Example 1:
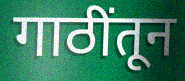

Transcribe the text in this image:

गाठींतून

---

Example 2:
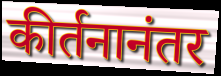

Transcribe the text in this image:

कीर्तनानंतर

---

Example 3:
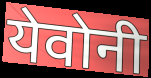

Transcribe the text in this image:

येवोनी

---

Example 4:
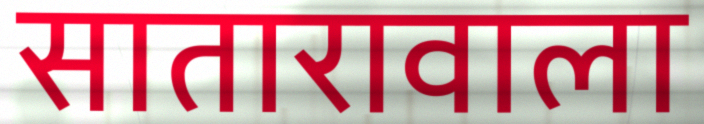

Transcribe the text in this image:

सातारावाला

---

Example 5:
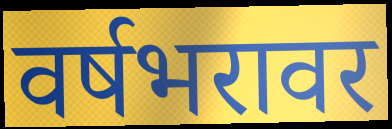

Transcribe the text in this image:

वर्षभरावर